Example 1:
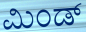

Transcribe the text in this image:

ಮಿಂಡ್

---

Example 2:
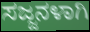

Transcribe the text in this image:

ಸಜ್ಜನಳಾಗಿ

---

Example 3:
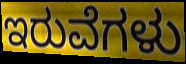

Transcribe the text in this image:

ಇರುವೆಗಳು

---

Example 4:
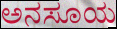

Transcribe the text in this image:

ಅನಸೂಯ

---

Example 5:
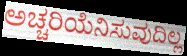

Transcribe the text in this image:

ಅಚ್ಚರಿಯೆನಿಸುವುದಿಲ್ಲ